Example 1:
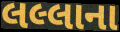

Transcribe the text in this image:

લલ્લાના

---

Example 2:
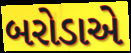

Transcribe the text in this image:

બરોડાએ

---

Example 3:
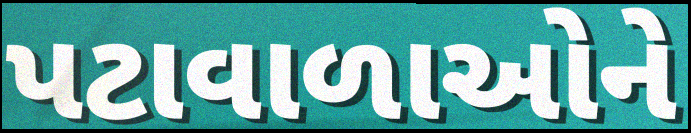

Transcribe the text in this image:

પટાવાળાઓને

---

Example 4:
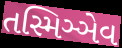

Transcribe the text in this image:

તસ્મિઞ્ઞેવ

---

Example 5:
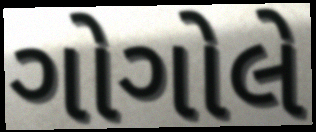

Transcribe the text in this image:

ગોગોલે